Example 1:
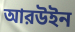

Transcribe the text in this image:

আরউইন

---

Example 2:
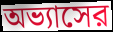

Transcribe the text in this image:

অভ্যাসের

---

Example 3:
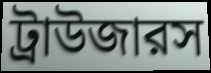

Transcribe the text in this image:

ট্রাউজারস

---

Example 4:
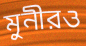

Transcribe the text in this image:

মুনীরও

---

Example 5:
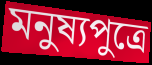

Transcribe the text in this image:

মনুষ্যপুত্রে